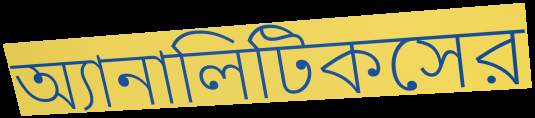
অ্যানালিটিকসের